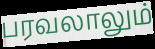
பரவலாலும்